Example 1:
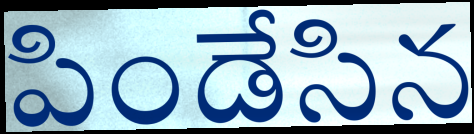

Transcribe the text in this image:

పిండేసిన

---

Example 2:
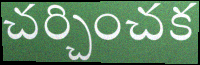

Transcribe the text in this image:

చర్చించక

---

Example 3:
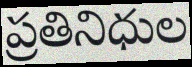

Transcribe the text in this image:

ప్రతినిధుల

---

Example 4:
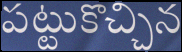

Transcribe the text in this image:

పట్టుకొచ్చిన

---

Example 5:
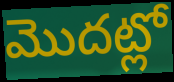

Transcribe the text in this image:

మొదట్లో